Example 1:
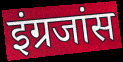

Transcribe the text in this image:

इंग्रजांस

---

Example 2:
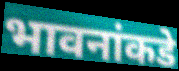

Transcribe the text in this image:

भावनांकडे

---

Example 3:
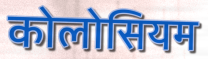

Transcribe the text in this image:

कोलोसियम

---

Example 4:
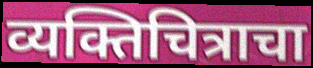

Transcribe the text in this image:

व्यक्तिचित्राचा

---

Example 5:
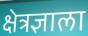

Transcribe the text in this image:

क्षेत्रज्ञाला